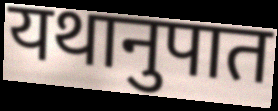
यथानुपात